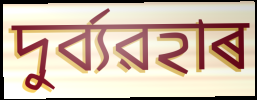
দুৰ্ব্যৱহাৰ